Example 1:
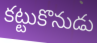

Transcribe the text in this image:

కట్టుకొనుడు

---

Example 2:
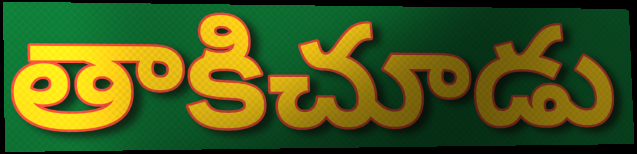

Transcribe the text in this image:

తాకిచూడు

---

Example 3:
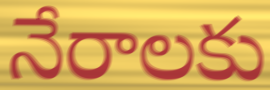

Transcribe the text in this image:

నేరాలకు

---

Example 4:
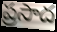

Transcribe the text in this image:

ప్రసాద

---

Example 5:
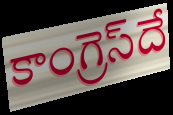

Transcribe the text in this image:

కాంగ్రెస్‌దే